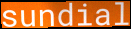
sundial